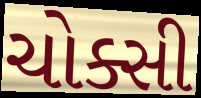
ચોક્સી